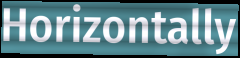
Horizontally